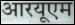
आरयूएम